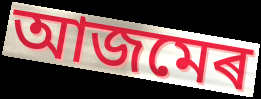
আজমেৰ